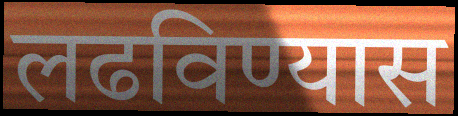
लढविण्यास